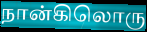
நான்கிலொரு